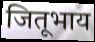
जितूभाय